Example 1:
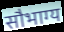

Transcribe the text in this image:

सौभाग्य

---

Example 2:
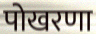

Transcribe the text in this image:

पोखरणा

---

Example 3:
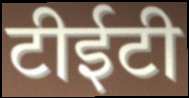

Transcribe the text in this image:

टीईटी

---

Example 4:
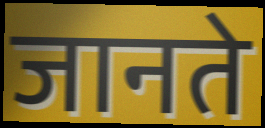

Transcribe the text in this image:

जानते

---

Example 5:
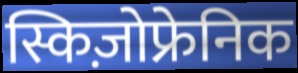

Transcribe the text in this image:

स्किज़ोफ्रेनिक